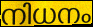
നിധനം